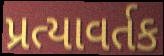
પ્રત્યાવર્તક